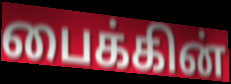
பைக்கின்